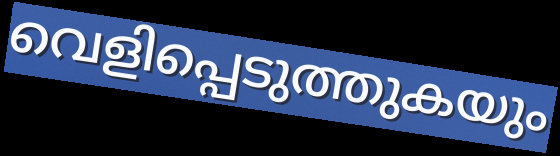
വെളിപ്പെടുത്തുകയും